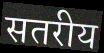
सतरीय